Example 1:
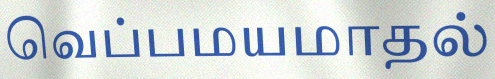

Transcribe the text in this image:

வெப்பமயமாதல்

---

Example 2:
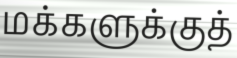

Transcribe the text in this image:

மக்களுக்குத்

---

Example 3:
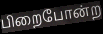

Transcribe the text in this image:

பிறைபோன்ற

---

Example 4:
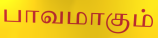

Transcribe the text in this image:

பாவமாகும்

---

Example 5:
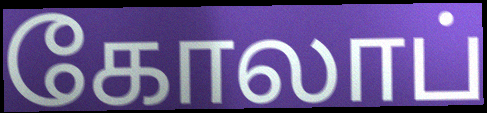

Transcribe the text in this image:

கோலாப்